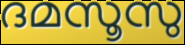
ദമസൂസു